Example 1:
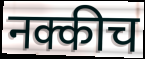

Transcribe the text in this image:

नक्‍कीच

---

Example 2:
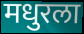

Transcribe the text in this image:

मधुरला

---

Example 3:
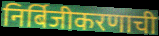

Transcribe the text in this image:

निर्बिजीकरणाची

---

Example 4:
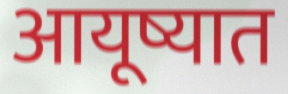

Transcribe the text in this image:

आयूष्यात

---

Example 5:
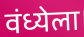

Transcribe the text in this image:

वंध्येला